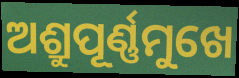
ଅଶ୍ରୁପୂର୍ଣ୍ଣମୁଖେ